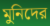
মুনিদের